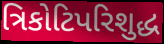
ત્રિકોટિપરિશુદ્ધ